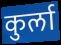
कुर्ला